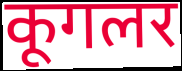
कूगलर